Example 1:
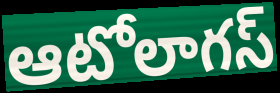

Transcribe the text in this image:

ఆటోలాగస్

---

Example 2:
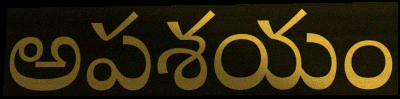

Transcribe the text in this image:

అపశయం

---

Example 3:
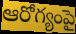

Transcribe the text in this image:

ఆరోగ్యంపై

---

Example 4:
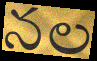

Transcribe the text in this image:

నల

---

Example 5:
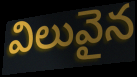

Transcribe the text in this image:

విలువైన